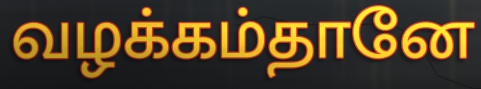
வழக்கம்தானே